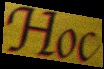
Hoc